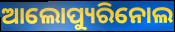
ଆଲୋପ୍ୟୁରିନୋଲ